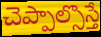
చెప్పాల్సొస్తే